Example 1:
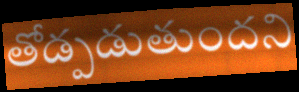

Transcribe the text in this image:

తోడ్పడుతుందని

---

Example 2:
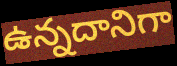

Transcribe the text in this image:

ఉన్నదానిగా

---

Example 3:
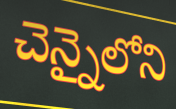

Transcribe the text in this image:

చెన్నైలోని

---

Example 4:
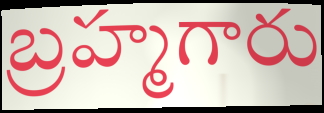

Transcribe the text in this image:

బ్రహ్మగారు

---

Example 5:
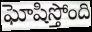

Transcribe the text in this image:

ఘోషిస్తోంది